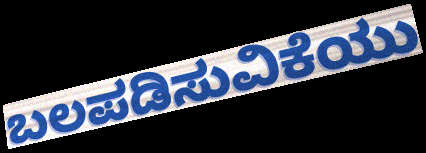
ಬಲಪಡಿಸುವಿಕೆಯು